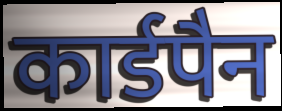
कार्डपैन